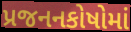
પ્રજનનકોષોમાં